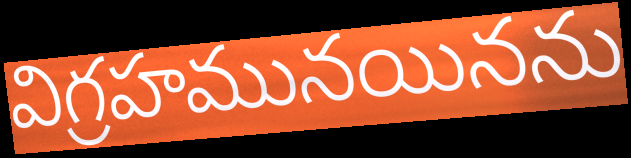
విగ్రహమునయినను